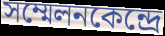
সম্মেলনকেন্দ্রে